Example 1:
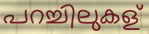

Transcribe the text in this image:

പറച്ചിലുകള്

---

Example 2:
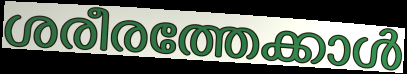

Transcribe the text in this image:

ശരീരത്തേക്കാൾ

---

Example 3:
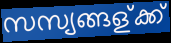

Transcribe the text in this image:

സസ്യങ്ങള്ക്ക്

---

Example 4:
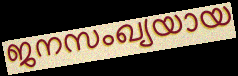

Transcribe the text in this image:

ജനസംഖ്യയായ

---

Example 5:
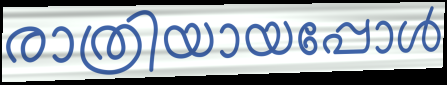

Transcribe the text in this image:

രാത്രിയായപ്പോൾ